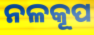
ନଳକୂପ